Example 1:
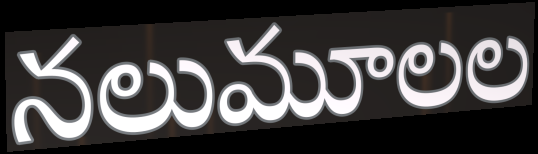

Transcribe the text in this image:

నలుమూలల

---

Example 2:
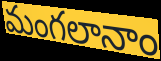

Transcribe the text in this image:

మంగలానాం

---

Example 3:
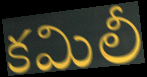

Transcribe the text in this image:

కమిలీ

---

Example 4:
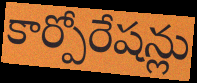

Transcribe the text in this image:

కార్పోరేషన్లు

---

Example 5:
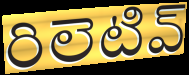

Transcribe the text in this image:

రిలెటివ్